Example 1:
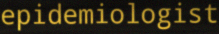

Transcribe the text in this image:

epidemiologist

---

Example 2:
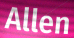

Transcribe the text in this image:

Allen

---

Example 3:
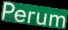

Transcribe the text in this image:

Perum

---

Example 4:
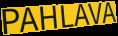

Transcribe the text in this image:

PAHLAVA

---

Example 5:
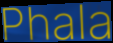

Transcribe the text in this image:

Phala